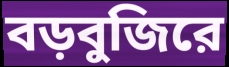
বড়বুজিরে